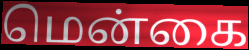
மென்கை